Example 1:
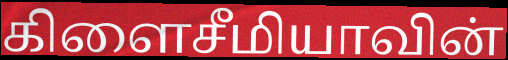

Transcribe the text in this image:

கிளைசீமியாவின்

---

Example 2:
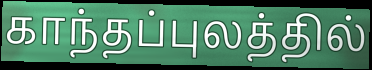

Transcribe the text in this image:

காந்தப்புலத்தில்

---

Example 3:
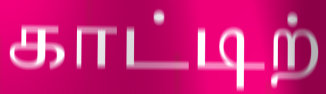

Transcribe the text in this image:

காட்டிற்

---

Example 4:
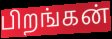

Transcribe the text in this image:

பிறங்கன்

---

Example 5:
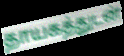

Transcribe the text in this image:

தாயகத்துடன்